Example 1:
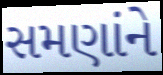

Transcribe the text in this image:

સમણાંને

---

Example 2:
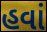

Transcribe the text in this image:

હવાં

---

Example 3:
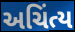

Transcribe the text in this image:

અચિંત્ય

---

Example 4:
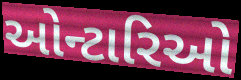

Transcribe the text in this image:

ઓન્ટારિઓ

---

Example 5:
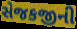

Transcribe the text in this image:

સેજકજીની